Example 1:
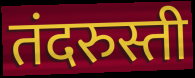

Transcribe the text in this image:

तंदरुस्ती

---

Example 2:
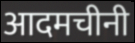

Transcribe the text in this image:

आदमचीनी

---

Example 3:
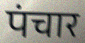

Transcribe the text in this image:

पंचार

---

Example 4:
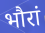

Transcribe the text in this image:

भौरां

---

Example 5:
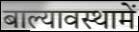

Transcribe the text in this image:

बाल्यावस्थामें